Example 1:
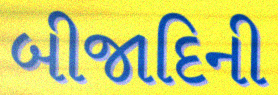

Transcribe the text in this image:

બીજાદિની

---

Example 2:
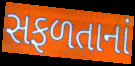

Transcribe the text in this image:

સફળતાનાં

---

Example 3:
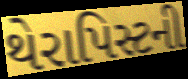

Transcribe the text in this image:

થેરાપિસ્ટની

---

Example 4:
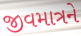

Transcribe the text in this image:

જીવમાત્રને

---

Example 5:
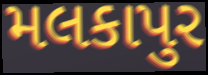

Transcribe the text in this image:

મલકાપુર